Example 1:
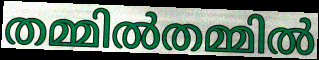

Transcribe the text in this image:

തമ്മിൽതമ്മിൽ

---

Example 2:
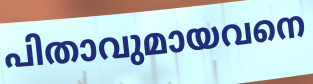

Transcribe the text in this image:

പിതാവുമായവനെ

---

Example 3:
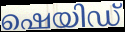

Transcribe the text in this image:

ഷെയിഡ്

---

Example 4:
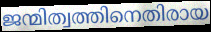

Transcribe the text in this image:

ജന്മിത്വത്തിനെതിരായ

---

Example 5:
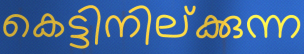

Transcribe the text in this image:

കെട്ടിനില്ക്കുന്ന